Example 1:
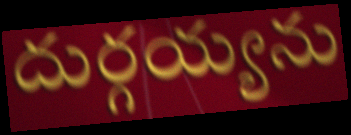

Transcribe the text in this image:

దుర్గయ్యను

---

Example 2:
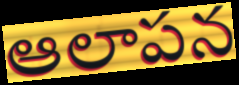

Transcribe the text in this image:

ఆలాపన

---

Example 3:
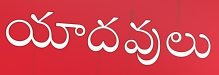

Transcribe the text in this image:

యాదవులు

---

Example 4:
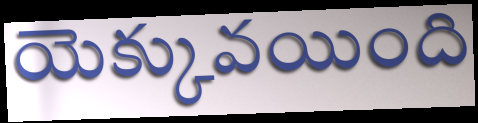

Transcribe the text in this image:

యెక్కువయింది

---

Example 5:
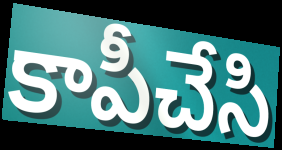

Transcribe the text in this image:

కాపీచేసి